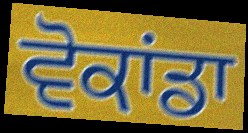
ਵੋਕਾਂਡਾ